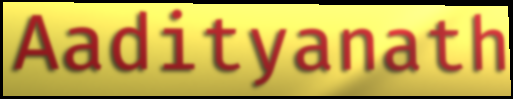
Aadityanath